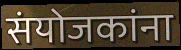
संयोजकांना